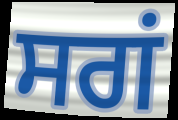
ਸਗਂ